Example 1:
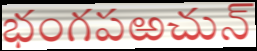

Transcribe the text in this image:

భంగపఱచున్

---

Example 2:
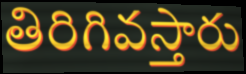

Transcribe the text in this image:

తిరిగివస్తారు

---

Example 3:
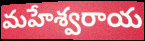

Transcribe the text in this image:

మహేశ్వరాయ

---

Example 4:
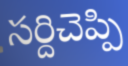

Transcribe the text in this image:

సర్దిచెప్పి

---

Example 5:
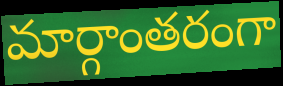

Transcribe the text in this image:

మార్గాంతరంగా